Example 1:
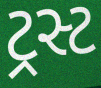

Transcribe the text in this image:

ટ્રસ્ટ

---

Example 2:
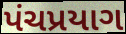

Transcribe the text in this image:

પંચપ્રયાગ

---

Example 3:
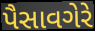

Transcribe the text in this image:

પૈસાવગેરે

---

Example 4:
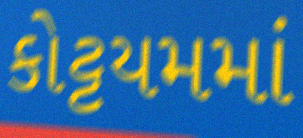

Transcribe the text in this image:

કોટ્ટયમમાં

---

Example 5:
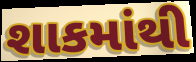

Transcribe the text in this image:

શાકમાંથી